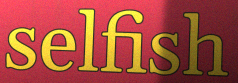
selfish